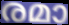
രമാ